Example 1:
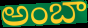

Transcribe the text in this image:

అంబా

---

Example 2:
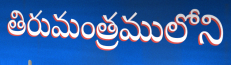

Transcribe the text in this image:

తిరుమంత్రములోని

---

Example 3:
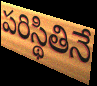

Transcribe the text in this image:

పరిస్థితినే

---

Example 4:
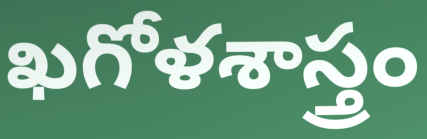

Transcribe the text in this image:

ఖగోళశాస్త్రం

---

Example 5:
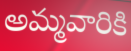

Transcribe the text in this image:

అమ్మవారికి